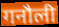
गनौली